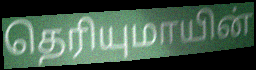
தெரியுமாயின்